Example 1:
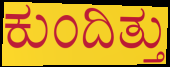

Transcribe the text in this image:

ಕುಂದಿತ್ತು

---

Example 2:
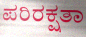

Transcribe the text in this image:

ಪರಿರಕ್ಷತಾ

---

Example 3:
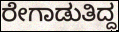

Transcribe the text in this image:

ರೇಗಾಡುತಿದ್ದ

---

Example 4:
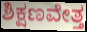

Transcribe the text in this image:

ಶಿಕ್ಷಣವೇತ್ತ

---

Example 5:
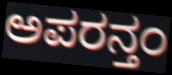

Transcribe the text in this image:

ಅಪರನ್ತಂ